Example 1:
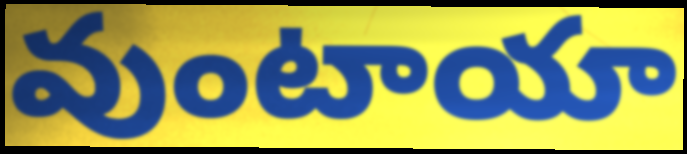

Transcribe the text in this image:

వుంటాయా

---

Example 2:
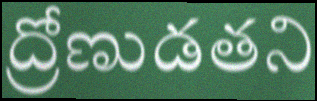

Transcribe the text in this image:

ద్రోణుడతని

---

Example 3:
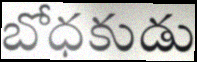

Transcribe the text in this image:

బోధకుడు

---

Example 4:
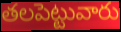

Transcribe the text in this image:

తలపెట్టువారు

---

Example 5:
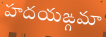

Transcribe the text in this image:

హదయఙ్గమా